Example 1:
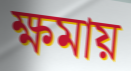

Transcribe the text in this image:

ক্ষমায়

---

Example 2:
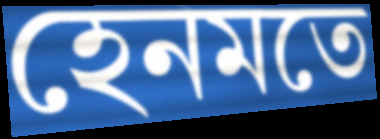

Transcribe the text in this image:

হেনমতে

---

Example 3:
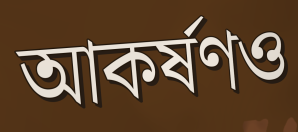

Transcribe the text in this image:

আকর্ষণও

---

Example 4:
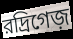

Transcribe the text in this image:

রদ্রিগেজ়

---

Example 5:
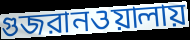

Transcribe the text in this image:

গুজরানওয়ালায়